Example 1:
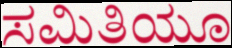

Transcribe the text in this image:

ಸಮಿತಿಯೂ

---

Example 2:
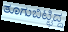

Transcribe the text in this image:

ತೂಗುಬಿಟ್ಟಿದ್ದ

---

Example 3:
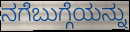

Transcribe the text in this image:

ನಗೆಬುಗ್ಗೆಯನ್ನು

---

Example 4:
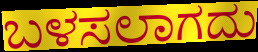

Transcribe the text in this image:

ಬಳಸಲಾಗದು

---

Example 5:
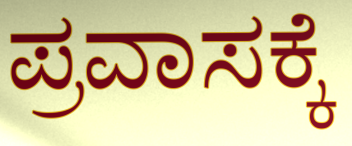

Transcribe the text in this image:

ಪ್ರವಾಸಕ್ಕೆ